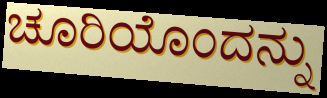
ಚೂರಿಯೊಂದನ್ನು